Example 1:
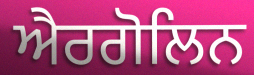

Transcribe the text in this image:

ਐਰਗੋਲਿਨ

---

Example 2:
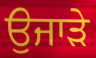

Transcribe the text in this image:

ਉਜਾੜੇ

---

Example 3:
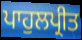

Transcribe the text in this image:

ਪਾਹੁਲਪ੍ਰੀਤ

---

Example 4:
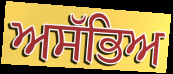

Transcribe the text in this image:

ਅਸੱਭਿਅ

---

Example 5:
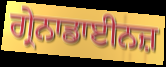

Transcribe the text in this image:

ਗ੍ਰੇਨਾਡਾਈਨਜ਼